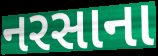
નરસાના